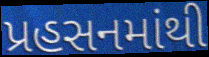
પ્રહસનમાંથી